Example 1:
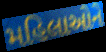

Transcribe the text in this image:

મહિલાઓને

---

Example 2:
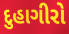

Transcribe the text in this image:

દુહાગીરો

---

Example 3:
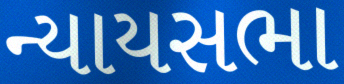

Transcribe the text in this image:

ન્યાયસભા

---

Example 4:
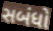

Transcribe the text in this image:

સબંધો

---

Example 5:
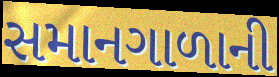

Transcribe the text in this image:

સમાનગાળાની